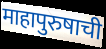
माहापुरुषाची